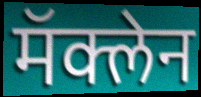
मॅक्लेन